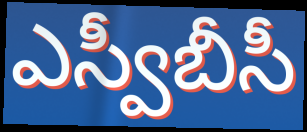
ఎస్వీబీసీ